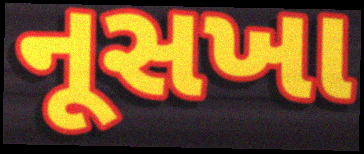
નૂસખા